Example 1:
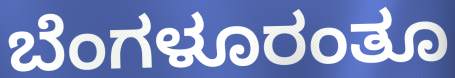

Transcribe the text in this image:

ಬೆಂಗಳೂರಂತೂ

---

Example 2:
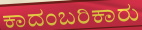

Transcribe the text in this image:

ಕಾದಂಬರಿಕಾರು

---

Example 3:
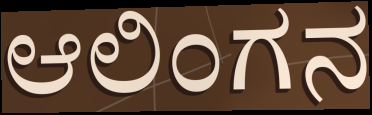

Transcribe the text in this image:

ಆಲಿಂಗನ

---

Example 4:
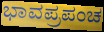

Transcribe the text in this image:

ಭಾವಪ್ರಪಂಚ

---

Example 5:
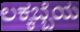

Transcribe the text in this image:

ಲಕ್ಕಬ್ಬೆಯ